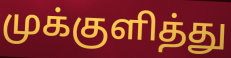
முக்குளித்து